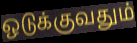
ஒடுக்குவதும்